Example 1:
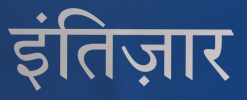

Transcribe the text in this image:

इंतिज़ार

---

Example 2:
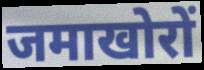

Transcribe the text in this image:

जमाखोरों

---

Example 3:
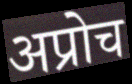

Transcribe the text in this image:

अप्रोच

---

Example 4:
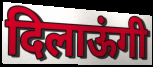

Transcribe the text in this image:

दिलाऊंगी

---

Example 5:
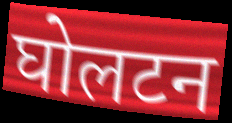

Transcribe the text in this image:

घोलटन